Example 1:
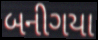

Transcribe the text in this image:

બનીગયા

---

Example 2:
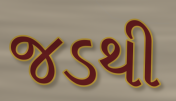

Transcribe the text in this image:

જડથી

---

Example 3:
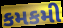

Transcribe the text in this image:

કમકમી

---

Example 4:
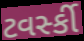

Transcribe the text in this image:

ટવર્સ્કી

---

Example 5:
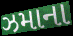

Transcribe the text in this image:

ઝમાના